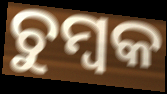
ଚୁମ୍ବକ